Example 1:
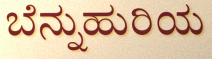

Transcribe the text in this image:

ಬೆನ್ನುಹುರಿಯ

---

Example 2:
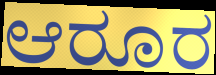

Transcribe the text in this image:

ಆರೂರ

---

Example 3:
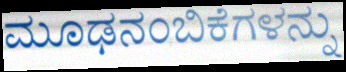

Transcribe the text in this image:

ಮೂಢನಂಬಿಕೆಗಳನ್ನು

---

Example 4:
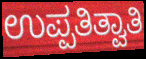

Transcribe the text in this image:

ಉಪ್ಪತಿತ್ವಾತಿ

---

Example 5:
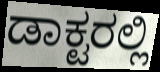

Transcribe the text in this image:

ಡಾಕ್ಟರಲ್ಲಿ